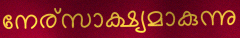
നേര്സാക്ഷ്യമാകുന്നു